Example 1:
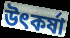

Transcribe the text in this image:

উৎকর্ষা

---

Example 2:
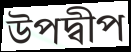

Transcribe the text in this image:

উপদ্বীপ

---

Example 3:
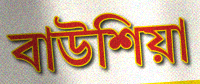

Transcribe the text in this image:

বাউশিয়া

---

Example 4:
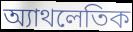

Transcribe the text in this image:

অ্যাথলেতিক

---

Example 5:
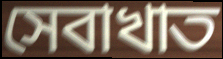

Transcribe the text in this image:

সেবাখাত